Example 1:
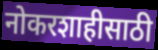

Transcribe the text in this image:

नोकरशाहीसाठी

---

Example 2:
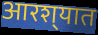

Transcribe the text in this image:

आरश्यात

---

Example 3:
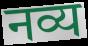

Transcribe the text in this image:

नव्य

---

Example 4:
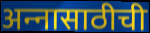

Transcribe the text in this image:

अन्नासाठीची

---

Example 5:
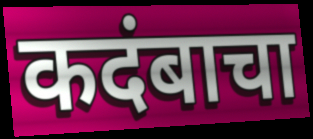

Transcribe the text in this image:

कदंबाचा